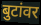
बुटांवर